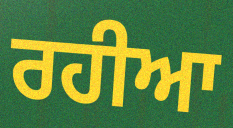
ਰਹੀਆ